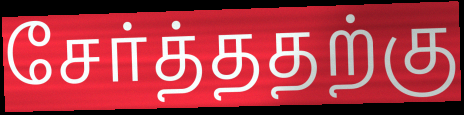
சேர்த்ததற்கு